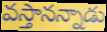
వస్తానన్నాడు